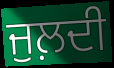
ਜੁਲ਼ਦੀ